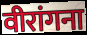
वीरांगना